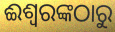
ଈଶ୍ଵରଙ୍କଠାରୁ